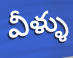
వీళ్ళు